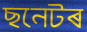
ছনেটৰ